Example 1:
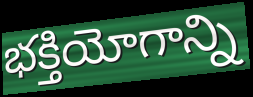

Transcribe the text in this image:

భక్తియోగాన్ని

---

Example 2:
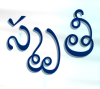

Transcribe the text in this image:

స్మృతీ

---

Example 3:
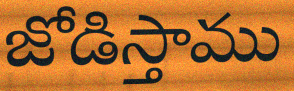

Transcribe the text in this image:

జోడిస్తాము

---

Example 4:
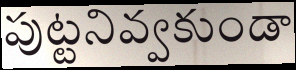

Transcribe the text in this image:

పుట్టనివ్వకుండా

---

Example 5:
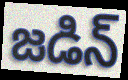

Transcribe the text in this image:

జడిన్